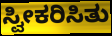
ಸ್ವೀಕರಿಸಿತು